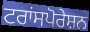
ਟਰਾਂਸਪੋਰੇਸ਼ਨ